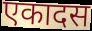
एकादस